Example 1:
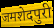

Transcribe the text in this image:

जमशेदपुरी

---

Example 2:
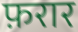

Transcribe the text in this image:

फ़रार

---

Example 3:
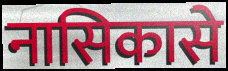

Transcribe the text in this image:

नासिकासे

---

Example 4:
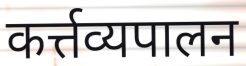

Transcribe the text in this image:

कर्त्तव्यपालन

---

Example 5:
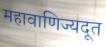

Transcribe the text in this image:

महावाणिज्यदूत